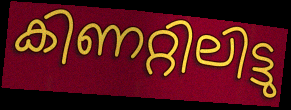
കിണറ്റിലിട്ടു